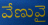
వేణువై